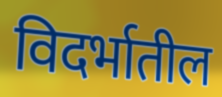
विदर्भातील